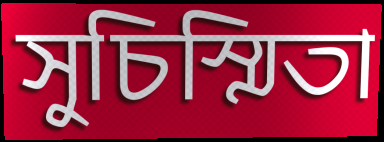
সুচিস্মিতা